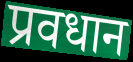
प्रवधान